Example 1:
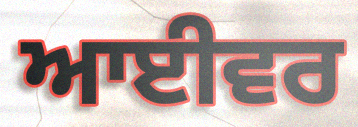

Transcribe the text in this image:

ਆਈਵਰ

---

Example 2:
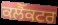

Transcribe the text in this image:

ਕਲੈੱਕਟਰ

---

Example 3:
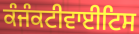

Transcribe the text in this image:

ਕੰਜੰਕਟੀਵਾਈਟਿਸ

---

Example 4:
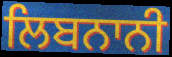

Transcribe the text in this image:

ਲਿਬਨਾਨੀ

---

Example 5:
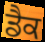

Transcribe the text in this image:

ਡੈਕ